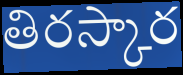
తిరస్కార